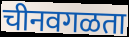
चीनवगळता